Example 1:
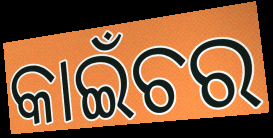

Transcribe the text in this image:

କାଇଁଚର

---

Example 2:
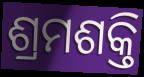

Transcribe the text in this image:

ଶ୍ରମଶକ୍ତି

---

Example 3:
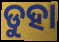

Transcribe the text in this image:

ଡୁହା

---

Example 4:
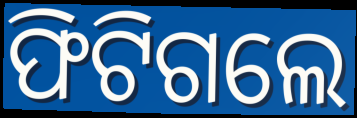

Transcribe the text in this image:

ଫିଟିଗଲେ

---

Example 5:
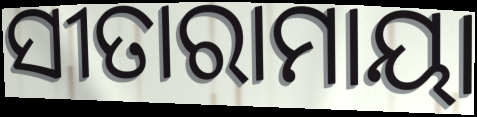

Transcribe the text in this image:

ସୀତାରାମାୟା